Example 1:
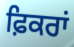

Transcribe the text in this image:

ਫ਼ਿਕਰਾਂ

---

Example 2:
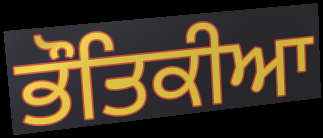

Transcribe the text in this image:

ਭੌਤਿਕੀਆ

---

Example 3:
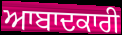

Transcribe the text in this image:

ਆਬਾਦਕਾਰੀ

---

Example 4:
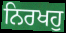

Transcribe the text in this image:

ਨਿਰਖਹੁ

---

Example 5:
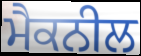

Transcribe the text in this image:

ਮੈਕਨੀਲ